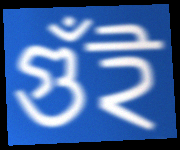
গুঁই